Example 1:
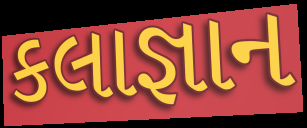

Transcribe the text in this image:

કલાજ્ઞાન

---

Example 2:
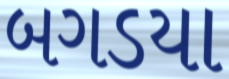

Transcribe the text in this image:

બગડયા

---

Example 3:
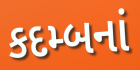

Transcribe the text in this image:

કદમ્બનાં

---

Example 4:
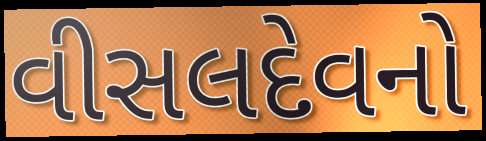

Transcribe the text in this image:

વીસલદેવનો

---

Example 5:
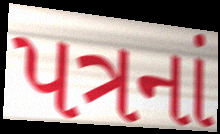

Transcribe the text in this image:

પત્રનાં